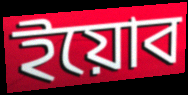
ইয়োব